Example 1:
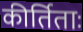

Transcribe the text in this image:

कीर्तिताः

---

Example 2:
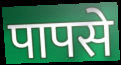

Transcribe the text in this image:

पापसे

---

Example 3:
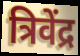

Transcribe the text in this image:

त्रिवेंद्र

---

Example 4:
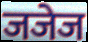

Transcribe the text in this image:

जजेज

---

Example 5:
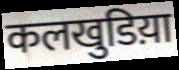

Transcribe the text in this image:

कलखुडिय़ा